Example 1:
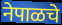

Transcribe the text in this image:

नेपाळचे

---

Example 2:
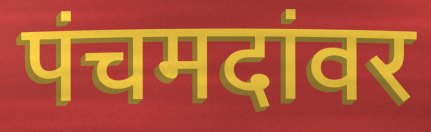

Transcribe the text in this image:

पंचमदांवर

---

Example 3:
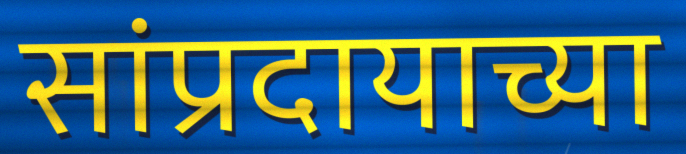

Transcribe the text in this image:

सांप्रदायाच्या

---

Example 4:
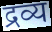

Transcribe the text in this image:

द्रव्य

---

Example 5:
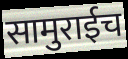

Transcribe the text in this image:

सामुराईच